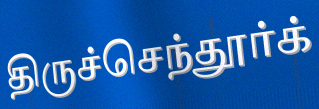
திருச்செந்தூர்க்